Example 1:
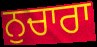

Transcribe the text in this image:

ਨੁਚਾਰਾ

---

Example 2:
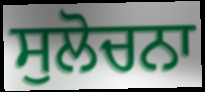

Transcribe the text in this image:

ਸੁਲੋਚਨਾ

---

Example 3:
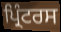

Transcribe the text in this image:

ਪ੍ਰਿੰਟਰਸ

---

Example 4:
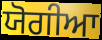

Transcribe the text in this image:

ਯੋਗੀਆ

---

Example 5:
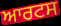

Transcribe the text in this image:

ਆਰਟਸ